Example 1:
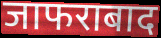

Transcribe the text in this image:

जाफराबाद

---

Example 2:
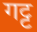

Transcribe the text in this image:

गट्ट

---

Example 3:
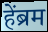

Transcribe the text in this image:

हेंब्रम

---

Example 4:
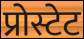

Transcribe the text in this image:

प्रोस्टेट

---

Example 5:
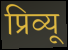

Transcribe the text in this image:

प्रिव्यू